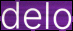
delo